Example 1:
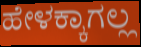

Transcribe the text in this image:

ಹೇಳಕ್ಕಾಗಲ್ಲ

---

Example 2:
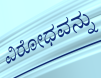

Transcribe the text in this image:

ವಿರೋಧವನ್ನು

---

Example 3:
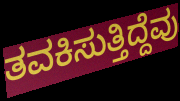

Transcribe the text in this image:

ತವಕಿಸುತ್ತಿದ್ದೆವು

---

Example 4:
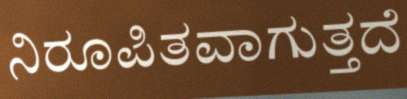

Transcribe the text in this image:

ನಿರೂಪಿತವಾಗುತ್ತದೆ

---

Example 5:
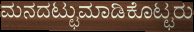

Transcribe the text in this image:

ಮನದಟ್ಟುಮಾಡಿಕೊಟ್ಟರು